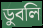
ডুবলি